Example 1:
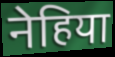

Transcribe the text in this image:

नेहिया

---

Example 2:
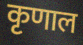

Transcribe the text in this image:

कृणाल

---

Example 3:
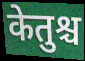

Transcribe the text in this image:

केतुश्च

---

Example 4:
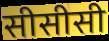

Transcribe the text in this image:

सीसीसी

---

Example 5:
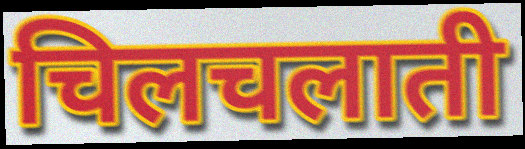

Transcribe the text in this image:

चिलचलाती